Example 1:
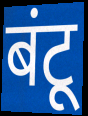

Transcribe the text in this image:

बंटू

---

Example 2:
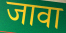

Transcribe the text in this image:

जावा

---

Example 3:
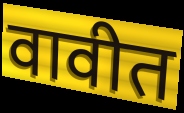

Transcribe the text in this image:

वावीत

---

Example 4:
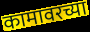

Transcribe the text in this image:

कामावरच्या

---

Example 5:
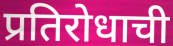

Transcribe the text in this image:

प्रतिरोधाची